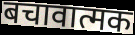
बचावात्मक